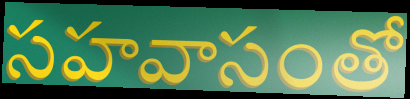
సహవాసంతో